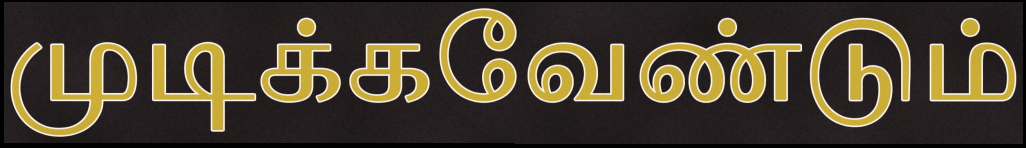
முடிக்கவேண்டும்